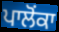
ਪਾਲੋਂਕਾ